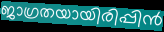
ജാഗ്രതയായിരിപ്പിൻ